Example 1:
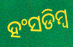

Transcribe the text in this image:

ହଂସଡିମ୍ବ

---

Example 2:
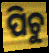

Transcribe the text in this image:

ପିଚୁ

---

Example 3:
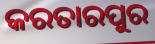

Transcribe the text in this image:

କରତାରପୁର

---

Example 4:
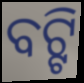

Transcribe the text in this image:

ବଟ୍ଟି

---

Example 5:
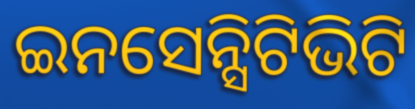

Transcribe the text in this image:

ଇନସେନ୍ସିଟିଭିଟି